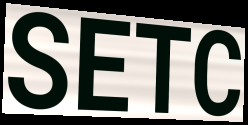
SETC